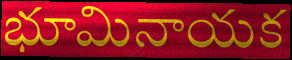
భూమినాయక